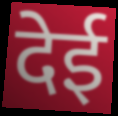
देई